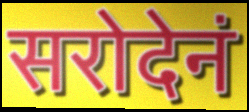
सरोदेनं